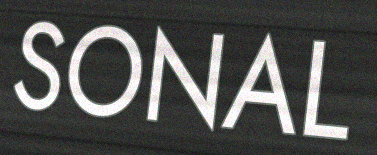
SONAL